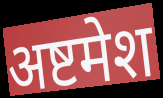
अष्टमेश